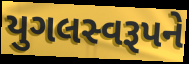
યુગલસ્વરૂપને